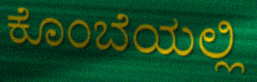
ಕೊಂಬೆಯಲ್ಲಿ